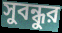
সুবন্ধুর